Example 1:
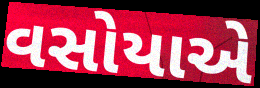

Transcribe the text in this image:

વસોયાએ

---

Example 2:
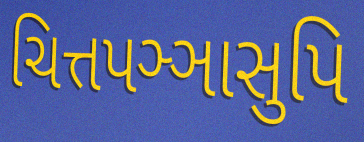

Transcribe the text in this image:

ચિત્તપઞ્ઞાસુપિ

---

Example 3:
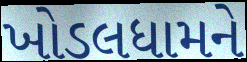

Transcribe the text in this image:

ખોડલધામને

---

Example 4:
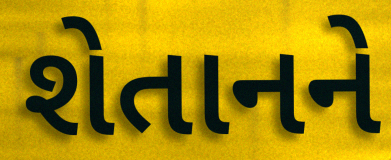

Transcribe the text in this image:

શેતાનને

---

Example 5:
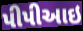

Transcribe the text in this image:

પીપીઆઇ